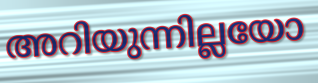
അറിയുന്നില്ലയോ